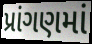
પ્રાંગણમાં